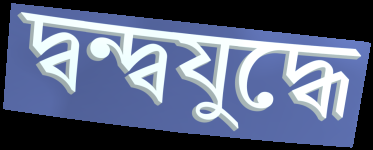
দ্বন্দ্বযুদ্ধে